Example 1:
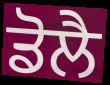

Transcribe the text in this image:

ਡੋਲੈ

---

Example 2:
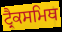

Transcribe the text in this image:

ਟ੍ਰੈਕਸਮਿਥ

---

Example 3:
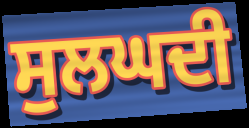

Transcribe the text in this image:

ਸੁਲਘਦੀ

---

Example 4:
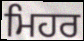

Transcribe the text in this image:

ਮਿਹਰ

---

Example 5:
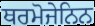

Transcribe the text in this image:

ਥਰਮੋਜੇਨਿਨ